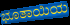
ಭೂತಾಯಿಯ